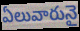
ఏలువారునై